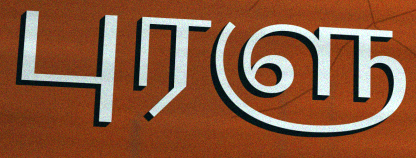
புரளு